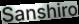
Sanshiro